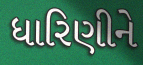
ધારિણીને